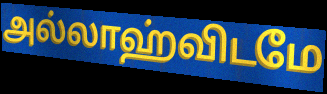
அல்லாஹ்விடமே